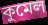
কুমেল